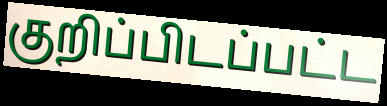
குறிப்பிடப்பட்ட